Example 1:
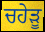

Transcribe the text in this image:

ਚਹੇਡ਼ੂ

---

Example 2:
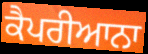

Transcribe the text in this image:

ਕੈਪਰੀਆਨਾ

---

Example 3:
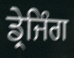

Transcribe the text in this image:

ਡ੍ਰੇਜਿੰਗ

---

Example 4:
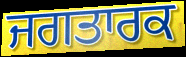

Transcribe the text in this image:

ਜਗਤਾਰਕ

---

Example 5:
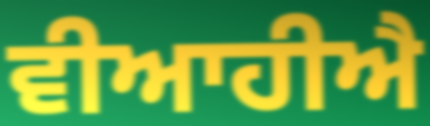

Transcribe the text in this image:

ਵੀਆਹੀਐ